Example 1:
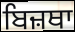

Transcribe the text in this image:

ਬਿਜ਼ਥਾ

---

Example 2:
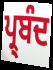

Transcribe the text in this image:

ਪ੍ਰ੍ਬੰਦ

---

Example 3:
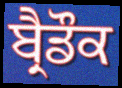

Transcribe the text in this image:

ਬ੍ਰੈਡੌਕ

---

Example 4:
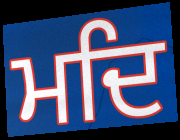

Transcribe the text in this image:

ਮਦਿ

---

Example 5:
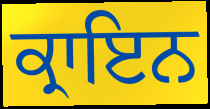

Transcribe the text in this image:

ਕ੍ਰਾਇਨ